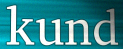
kund